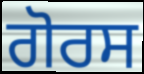
ਗੋਰਸ